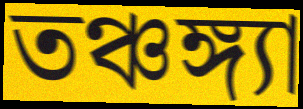
তঞ্চঙ্গ্যা